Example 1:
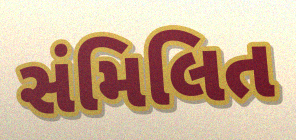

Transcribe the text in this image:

સંમિલિત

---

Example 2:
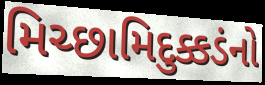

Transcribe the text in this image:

મિચ્છામિદુક્કડંનો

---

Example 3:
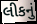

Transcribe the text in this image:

લીકનું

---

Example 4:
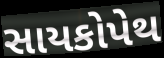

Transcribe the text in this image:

સાયકોપેથ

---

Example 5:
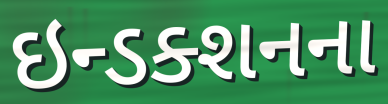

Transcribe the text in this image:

ઇન્ડક્શનના